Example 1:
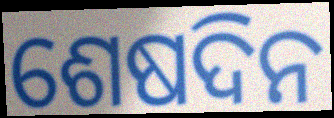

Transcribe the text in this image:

ଶେଷଦିନ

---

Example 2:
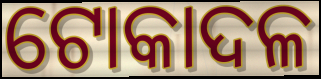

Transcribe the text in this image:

ଟୋକାଦଳ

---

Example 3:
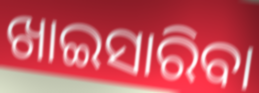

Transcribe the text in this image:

ଖାଇସାରିବା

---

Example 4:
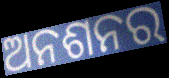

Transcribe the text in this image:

ଅନଶନର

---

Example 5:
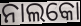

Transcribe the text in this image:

ନାଲକୋ